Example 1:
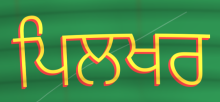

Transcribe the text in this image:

ਪਿਲਖਰ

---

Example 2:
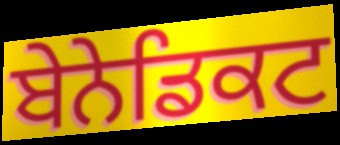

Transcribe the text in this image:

ਬੇਨੇਡਿਕਟ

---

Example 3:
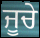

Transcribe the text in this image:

ਜੂਚੇ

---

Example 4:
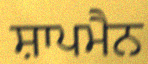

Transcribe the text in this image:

ਸ਼ਾਪਮੈਨ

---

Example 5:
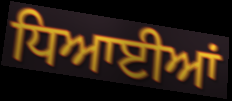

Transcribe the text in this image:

ਧਿਆਈਆਂ